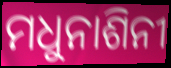
ମଧୁନାଶିନୀ